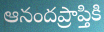
ఆనందప్రాప్తికి